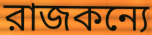
রাজকন্যে